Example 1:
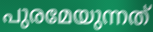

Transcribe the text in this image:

പുരമേയുന്നത്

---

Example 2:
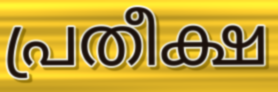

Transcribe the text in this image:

പ്രതീക്ഷ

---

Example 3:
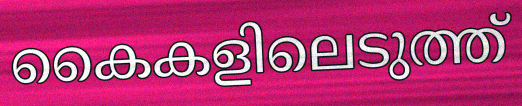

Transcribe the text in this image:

കൈകളിലെടുത്ത്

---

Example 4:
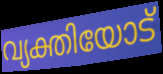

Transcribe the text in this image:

വ്യക്തിയോട്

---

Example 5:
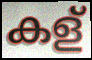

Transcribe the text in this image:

കള്